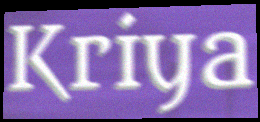
Kriya